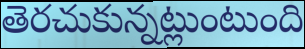
తెరచుకున్నట్లుంటుంది